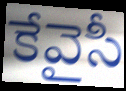
కేవైసీ